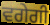
ਵਗੇਗੀ